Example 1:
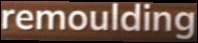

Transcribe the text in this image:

remoulding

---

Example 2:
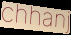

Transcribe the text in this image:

chhanj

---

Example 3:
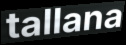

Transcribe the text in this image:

tallana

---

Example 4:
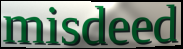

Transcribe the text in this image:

misdeed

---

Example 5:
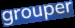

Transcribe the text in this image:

grouper